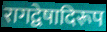
रागद्वेषादिरूप